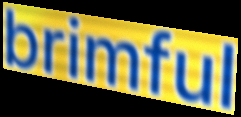
brimful